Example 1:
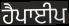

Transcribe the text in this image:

ਹੈਪਾਈਪ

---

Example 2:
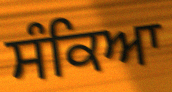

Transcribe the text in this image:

ਸੰਕਿਆ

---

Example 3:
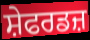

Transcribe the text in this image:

ਸ਼ੇਫਰਡਜ਼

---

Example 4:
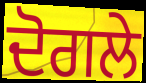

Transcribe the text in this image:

ਦੋਗਲੇ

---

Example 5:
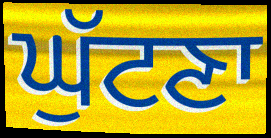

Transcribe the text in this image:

ਘੁੱਟਣਾ